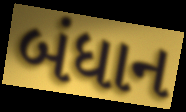
બંધાન